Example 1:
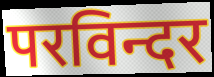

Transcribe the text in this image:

परविन्दर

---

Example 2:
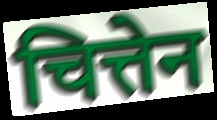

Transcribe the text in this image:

चित्तेन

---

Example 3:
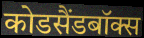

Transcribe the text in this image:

कोडसैंडबॉक्स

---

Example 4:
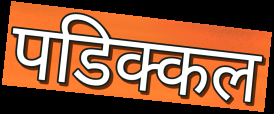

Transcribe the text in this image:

पडिक्कल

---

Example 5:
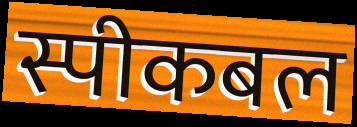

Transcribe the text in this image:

स्पीकबल